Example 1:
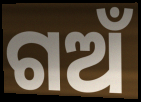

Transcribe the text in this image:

ଗଅଁ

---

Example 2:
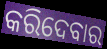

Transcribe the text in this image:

କରିଦେବାର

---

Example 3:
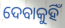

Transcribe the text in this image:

ଦେବାକୁହିଁ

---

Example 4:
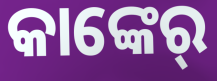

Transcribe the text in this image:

କାଙ୍କେର୍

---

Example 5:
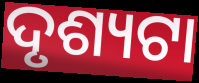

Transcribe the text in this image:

ଦୃଶ୍ୟଟା